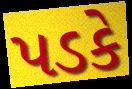
પડકે